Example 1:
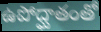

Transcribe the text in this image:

ఉపోద్ఘాతంతో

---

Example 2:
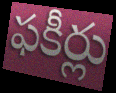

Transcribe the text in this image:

ఫకీర్లు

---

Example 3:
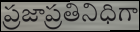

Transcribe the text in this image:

ప్రజాప్రతినిధిగా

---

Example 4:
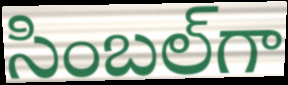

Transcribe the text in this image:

సింబల్‌గా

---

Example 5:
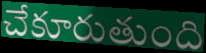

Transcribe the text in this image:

చేకూరుతుంది